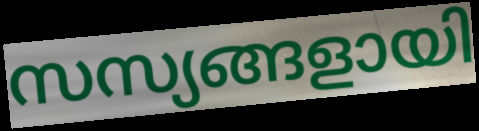
സസ്യങ്ങളായി